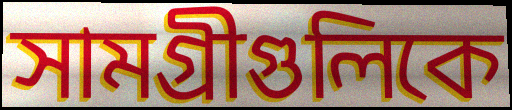
সামগ্রীগুলিকে